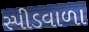
સ્પીડવાળા